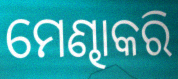
ମେଣ୍ଢାକରି